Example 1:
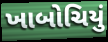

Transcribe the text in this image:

ખાબોચિયું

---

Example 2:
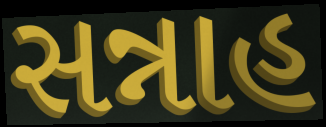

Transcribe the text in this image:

સન્નાહ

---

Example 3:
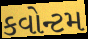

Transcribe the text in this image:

કવોન્ટમ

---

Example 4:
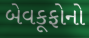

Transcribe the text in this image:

બેવકૂફોનો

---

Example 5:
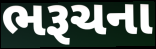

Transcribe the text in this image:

ભરૂચના